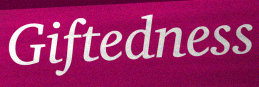
Giftedness